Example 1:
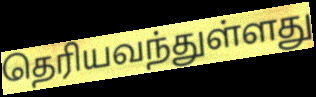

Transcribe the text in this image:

தெரியவந்துள்ளது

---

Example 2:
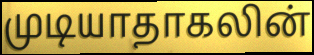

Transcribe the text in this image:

முடியாதாகலின்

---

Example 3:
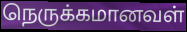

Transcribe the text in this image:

நெருக்கமானவள்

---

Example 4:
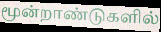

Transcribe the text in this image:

மூன்றாண்டுகளில்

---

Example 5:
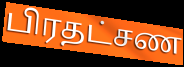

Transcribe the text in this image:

பிரதட்சண